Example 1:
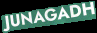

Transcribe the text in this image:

JUNAGADH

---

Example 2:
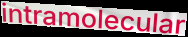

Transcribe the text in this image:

intramolecular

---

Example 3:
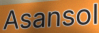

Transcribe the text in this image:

Asansol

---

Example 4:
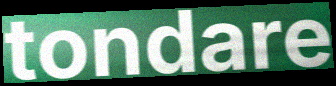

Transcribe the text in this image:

tondare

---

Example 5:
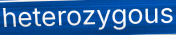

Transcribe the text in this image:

heterozygous